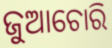
ଜୁଆଚୋରି